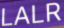
LALR